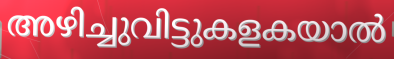
അഴിച്ചുവിട്ടുകളകയാൽ